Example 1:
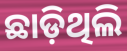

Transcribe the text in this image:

ଛାଡ଼ିଥିଲି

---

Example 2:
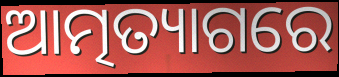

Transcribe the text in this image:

ଆତ୍ମତ୍ୟାଗରେ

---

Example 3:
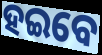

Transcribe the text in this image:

ହଇବେ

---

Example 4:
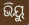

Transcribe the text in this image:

ଭିୟୁ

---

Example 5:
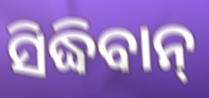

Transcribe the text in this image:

ସିଦ୍ଧିବାନ୍